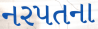
નરપતના